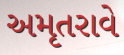
અમૃતરાવે